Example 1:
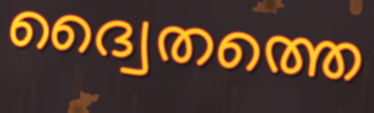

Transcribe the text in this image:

ദ്വൈതത്തെ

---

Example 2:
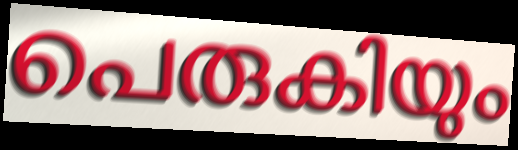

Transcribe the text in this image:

പെരുകിയും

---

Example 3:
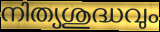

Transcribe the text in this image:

നിത്യശുദ്ധവും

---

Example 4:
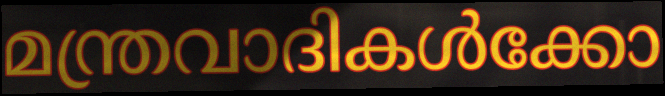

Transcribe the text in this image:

മന്ത്രവാദികൾക്കോ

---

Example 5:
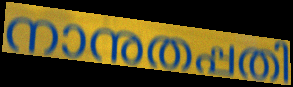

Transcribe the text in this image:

നാനുതപ്പതി